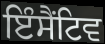
ਇੰਸੈਂਟਿਵ